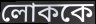
লোককে